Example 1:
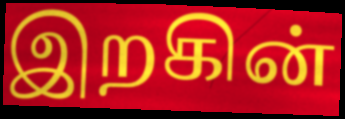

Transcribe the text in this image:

இறகின்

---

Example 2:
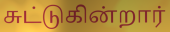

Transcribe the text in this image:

சுட்டுகின்றார்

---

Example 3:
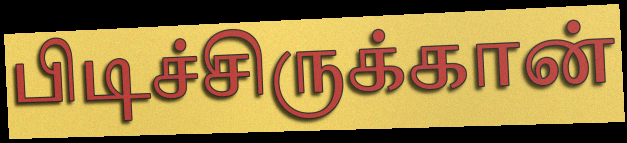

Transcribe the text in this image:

பிடிச்சிருக்கான்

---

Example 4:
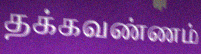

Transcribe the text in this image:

தக்கவண்ணம்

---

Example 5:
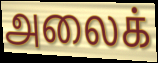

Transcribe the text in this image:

அலைக்